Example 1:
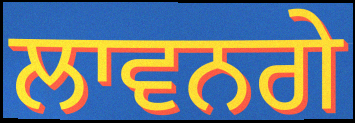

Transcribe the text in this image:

ਲਾਵਨਗੇ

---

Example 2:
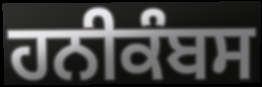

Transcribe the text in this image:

ਹਨੀਕੰਬਸ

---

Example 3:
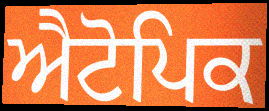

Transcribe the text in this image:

ਐਟੋਪਿਕ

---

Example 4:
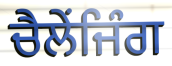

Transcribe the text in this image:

ਚੈਲੇਂਜਿੰਗ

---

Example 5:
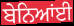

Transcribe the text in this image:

ਬੇਨਿਆਂਈ